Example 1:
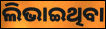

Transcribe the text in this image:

ଲିଭାଇଥିବା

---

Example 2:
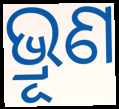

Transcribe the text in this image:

ଭ୍ରୂଣ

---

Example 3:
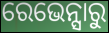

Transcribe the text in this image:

ରେଭେନ୍ସାରୁ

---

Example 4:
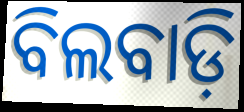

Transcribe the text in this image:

ବିଲବାଡ଼ି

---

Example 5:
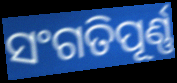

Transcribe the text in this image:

ସଂଗତିପୂର୍ଣ୍ଣ